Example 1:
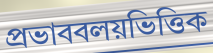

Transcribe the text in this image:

প্রভাববলয়ভিত্তিক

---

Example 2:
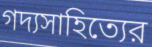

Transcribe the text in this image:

গদ্যসাহিত্যের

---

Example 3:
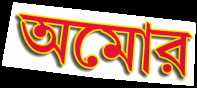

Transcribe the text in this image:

অমোর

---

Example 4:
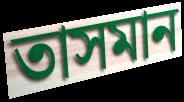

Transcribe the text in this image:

তাসমান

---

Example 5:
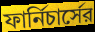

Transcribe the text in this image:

ফার্নিচার্সের